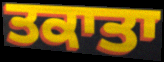
ਤਕਾਤਾ